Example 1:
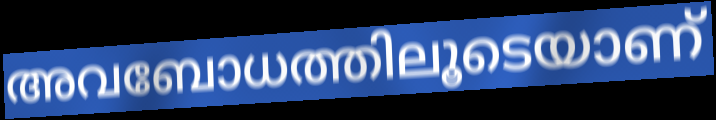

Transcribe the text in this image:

അവബോധത്തിലൂടെയാണ്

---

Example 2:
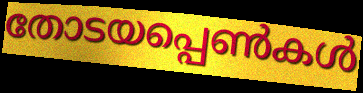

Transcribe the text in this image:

തോടയപ്പെൺകൾ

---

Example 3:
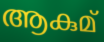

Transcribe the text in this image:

ആകുമ്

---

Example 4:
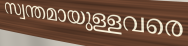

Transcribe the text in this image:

സ്വന്തമായുള്ളവരെ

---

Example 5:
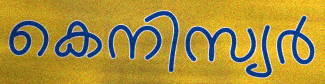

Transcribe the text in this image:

കെനിസ്യർ